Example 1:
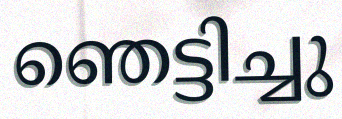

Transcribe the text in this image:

ഞെട്ടിച്ചു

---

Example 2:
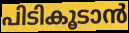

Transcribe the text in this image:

പിടികൂടാൻ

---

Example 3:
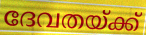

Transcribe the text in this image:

ദേവതയ്ക്ക്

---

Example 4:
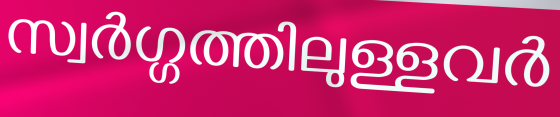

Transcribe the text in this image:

സ്വർഗ്ഗത്തിലുള്ളവർ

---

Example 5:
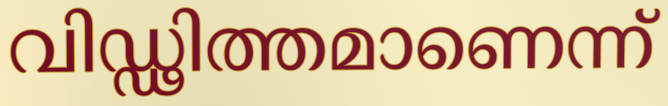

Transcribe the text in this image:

വിഡ്ഢിത്തമാണെന്ന്